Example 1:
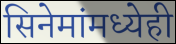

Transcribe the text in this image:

सिनेमांमध्येही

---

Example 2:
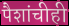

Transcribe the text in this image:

पैशांचीही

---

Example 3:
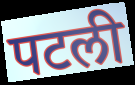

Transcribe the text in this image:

पटली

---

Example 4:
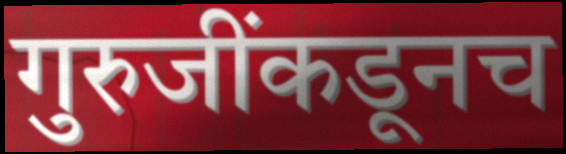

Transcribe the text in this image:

गुरुजींकडूनच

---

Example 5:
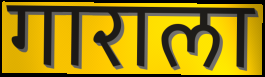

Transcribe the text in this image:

गाराला